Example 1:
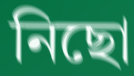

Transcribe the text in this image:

নিছো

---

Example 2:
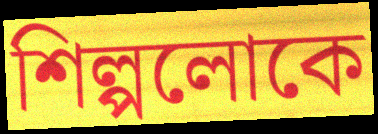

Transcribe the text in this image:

শিল্পলোকে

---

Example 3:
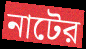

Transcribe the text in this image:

নাটের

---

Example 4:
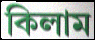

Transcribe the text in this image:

কিলাম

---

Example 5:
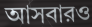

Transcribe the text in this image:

আসবারও